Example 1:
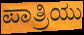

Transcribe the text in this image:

ಪಾತ್ರಿಯು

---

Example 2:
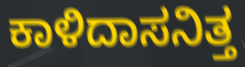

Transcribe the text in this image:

ಕಾಳಿದಾಸನಿತ್ತ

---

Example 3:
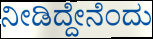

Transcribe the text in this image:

ನೀಡಿದ್ದೇನೆಂದು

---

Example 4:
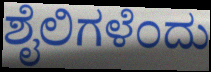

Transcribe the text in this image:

ಶೈಲಿಗಳೆಂದು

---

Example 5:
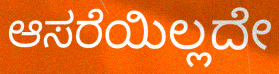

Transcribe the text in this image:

ಆಸರೆಯಿಲ್ಲದೇ